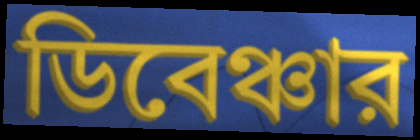
ডিবেঞ্চার